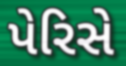
પેરિસે